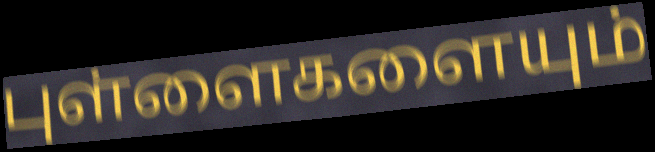
புள்ளைகளையும்